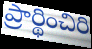
ప్రార్థించిరి